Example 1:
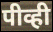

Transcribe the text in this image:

पीव्ही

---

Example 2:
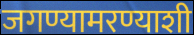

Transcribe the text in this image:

जगण्यामरण्याशी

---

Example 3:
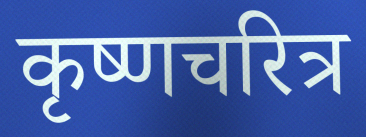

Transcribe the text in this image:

कृष्णचरित्र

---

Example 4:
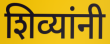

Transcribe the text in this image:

शिव्यांनी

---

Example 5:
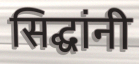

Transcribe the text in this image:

सिद्घांनी